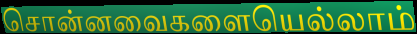
சொன்னவைகளையெல்லாம்